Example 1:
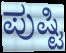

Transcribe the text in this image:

ಪುಷ್ಟಿ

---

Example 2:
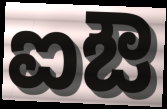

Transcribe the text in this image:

ಐಔ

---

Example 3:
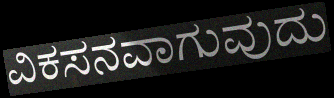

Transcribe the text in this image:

ವಿಕಸನವಾಗುವುದು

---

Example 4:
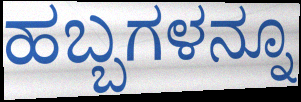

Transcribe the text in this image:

ಹಬ್ಬಗಳನ್ನೂ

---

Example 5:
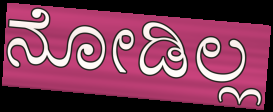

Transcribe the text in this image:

ನೋಡಿಲ್ಲ